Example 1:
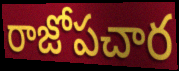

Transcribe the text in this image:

రాజోపచార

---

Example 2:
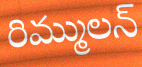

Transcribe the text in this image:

రిమ్ములన్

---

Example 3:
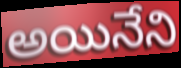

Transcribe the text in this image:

అయినేని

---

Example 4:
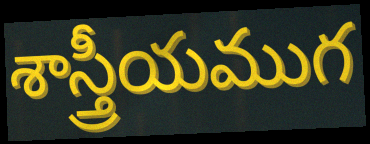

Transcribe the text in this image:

శాస్త్రీయముగ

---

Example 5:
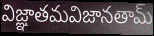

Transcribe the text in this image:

విజ్ఞాతమవిజానతామ్